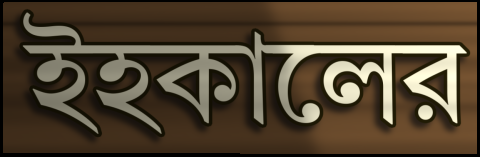
ইহকালের